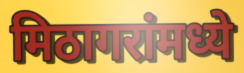
मिठागरांमध्ये